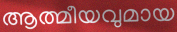
ആത്മീയവുമായ